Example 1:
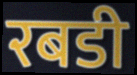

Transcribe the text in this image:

रबडी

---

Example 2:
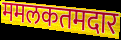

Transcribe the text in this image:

ममलकतमदार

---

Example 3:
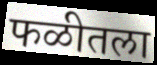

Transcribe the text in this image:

फळीतला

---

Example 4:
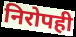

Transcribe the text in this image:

निरोपही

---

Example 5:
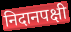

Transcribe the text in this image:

निदानपक्षी